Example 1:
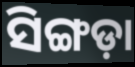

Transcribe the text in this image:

ସିଙ୍ଗଡ଼ା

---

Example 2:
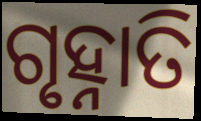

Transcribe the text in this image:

ଗୃହ୍ନାତି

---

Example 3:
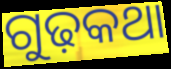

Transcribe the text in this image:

ଗୁଢ଼କଥା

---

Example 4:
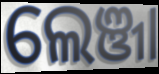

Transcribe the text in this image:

ଲେଞ୍ଜା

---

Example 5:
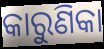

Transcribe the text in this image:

କାରୁଣିକା